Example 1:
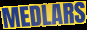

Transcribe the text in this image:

MEDLARS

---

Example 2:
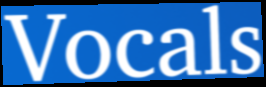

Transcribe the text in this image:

Vocals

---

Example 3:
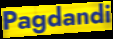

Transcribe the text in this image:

Pagdandi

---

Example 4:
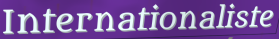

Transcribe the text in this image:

Internationaliste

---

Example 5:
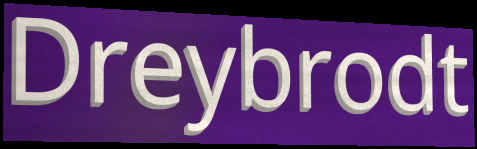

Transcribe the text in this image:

Dreybrodt